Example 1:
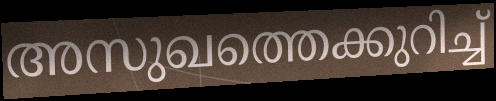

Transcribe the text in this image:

അസുഖത്തെക്കുറിച്ച്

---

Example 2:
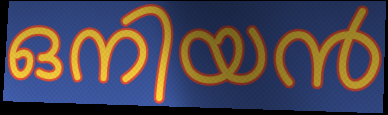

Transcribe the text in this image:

ഒനിയൻ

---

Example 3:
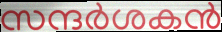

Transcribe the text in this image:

സന്ദർശകൻ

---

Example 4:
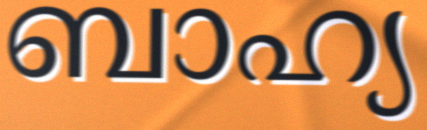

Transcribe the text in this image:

ബാഹ്യ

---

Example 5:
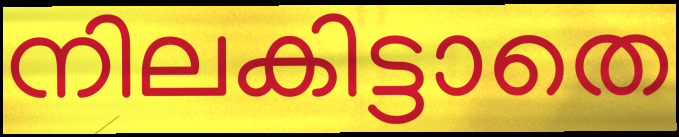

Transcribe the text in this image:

നിലകിട്ടാതെ